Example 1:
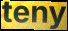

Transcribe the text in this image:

teny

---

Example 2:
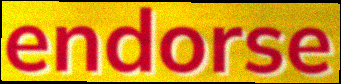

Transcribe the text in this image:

endorse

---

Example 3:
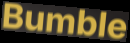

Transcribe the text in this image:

Bumble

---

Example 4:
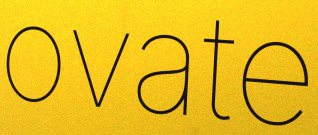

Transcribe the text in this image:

ovate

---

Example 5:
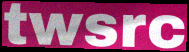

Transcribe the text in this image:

twsrc